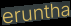
eruntha